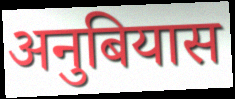
अनुबियास